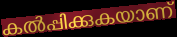
കൽപ്പിക്കുകയാണ്